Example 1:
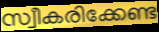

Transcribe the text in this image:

സ്വീകരിക്കേണ്ട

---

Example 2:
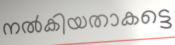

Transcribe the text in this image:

നൽകിയതാകട്ടെ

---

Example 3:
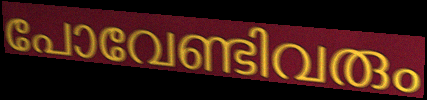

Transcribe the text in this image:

പോവേണ്ടിവരും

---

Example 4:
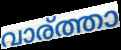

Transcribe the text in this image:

വാര്ത്താ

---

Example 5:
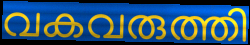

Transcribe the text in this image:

വകവരുത്തി